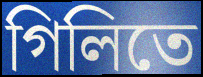
গিলিতে